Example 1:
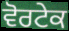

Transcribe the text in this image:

ਵੋਰਟੇਕ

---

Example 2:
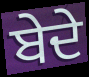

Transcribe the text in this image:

ਬੇਦੇ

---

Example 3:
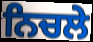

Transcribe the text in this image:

ਨਿਚਲੇ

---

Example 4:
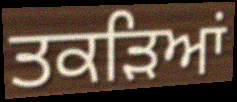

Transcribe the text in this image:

ਤਕੜਿਆਂ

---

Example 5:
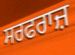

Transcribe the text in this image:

ਸਰਫਰਾਜ਼